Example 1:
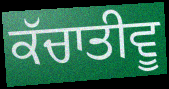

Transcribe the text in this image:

ਕੱਚਾਤੀਵੂ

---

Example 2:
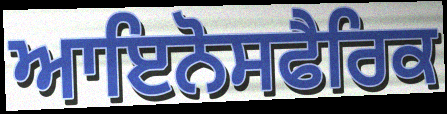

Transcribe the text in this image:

ਆਇਨੋਸਫੈਰਿਕ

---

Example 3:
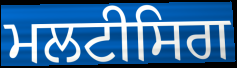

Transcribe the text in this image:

ਮਲਟੀਸਿਗ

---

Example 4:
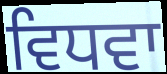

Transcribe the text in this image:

ਵਿਧਵਾ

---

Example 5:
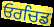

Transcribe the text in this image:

ਓਰਚਿਡ